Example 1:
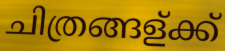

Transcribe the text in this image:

ചിത്രങ്ങള്ക്ക്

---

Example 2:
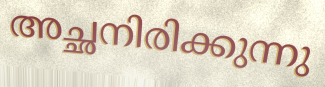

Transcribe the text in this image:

അച്ഛനിരിക്കുന്നു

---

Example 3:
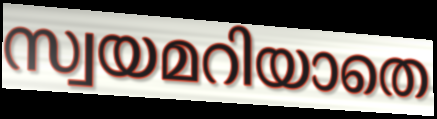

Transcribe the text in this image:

സ്വയമറിയാതെ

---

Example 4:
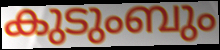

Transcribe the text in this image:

കുടുംബും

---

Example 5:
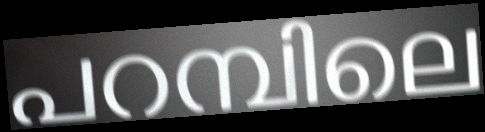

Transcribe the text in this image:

പറമ്പിലെ